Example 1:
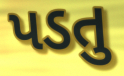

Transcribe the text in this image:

પડતુ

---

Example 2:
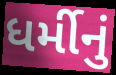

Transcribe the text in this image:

ધર્મીનું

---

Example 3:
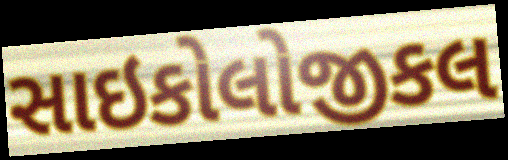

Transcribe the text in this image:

સાઇકોલોજીકલ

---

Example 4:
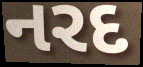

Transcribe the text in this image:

નરદ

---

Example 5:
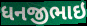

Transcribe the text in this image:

ધનજીભાઇ